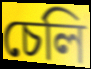
চেলি